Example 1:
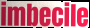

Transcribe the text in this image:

imbecile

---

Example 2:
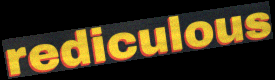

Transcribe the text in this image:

rediculous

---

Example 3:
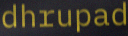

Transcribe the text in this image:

dhrupad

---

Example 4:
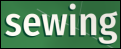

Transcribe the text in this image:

sewing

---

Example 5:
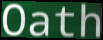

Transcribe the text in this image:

Oath